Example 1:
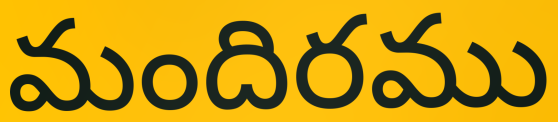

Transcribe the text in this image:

మందిరము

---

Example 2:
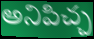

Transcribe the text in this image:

అనిపిచ్చ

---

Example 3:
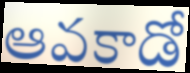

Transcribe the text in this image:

ఆవకాడో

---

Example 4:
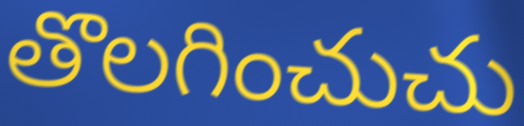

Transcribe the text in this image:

తొలగించుచు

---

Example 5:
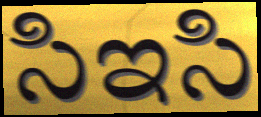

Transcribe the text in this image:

సిఇసి